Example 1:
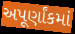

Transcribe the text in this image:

અપૂર્ણાંકમાં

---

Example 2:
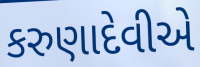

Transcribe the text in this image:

કરુણાદેવીએ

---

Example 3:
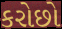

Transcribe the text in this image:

કરોછો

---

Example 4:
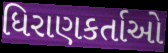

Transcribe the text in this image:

ધિરાણકર્તાઓ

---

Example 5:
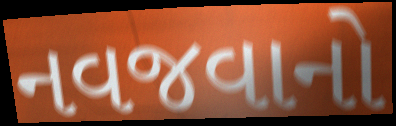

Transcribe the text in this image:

નવજવાનો